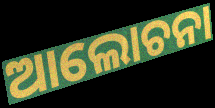
ଆଲୋଚନା